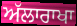
ਅੱਲਾਰਾਖਾ